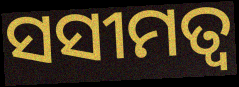
ସସୀମତ୍ୱ